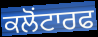
ਕਲੋਂਟਾਰਫ